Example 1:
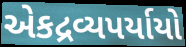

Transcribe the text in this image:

એકદ્રવ્યપર્યાયો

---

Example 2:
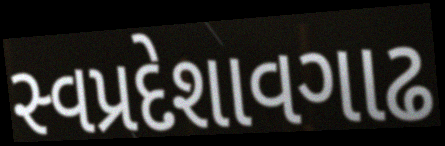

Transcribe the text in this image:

સ્વપ્રદેશાવગાઢ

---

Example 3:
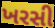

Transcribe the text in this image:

ખરસી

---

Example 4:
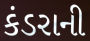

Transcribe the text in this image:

કંડરાની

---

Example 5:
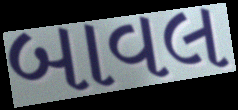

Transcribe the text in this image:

બાવલ